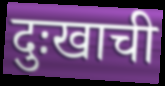
दुःखाची